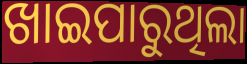
ଖାଇପାରୁଥିଲା